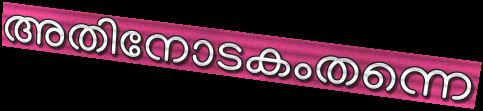
അതിനോടകംതന്നെ